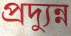
প্রদ্যুন্ন